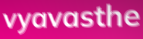
vyavasthe